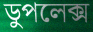
ডুপলেক্স